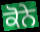
ਕੋਨੇ